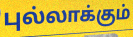
புல்லாக்கும்